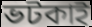
ভটকাই